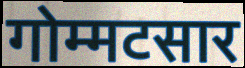
गोम्मटसार